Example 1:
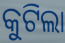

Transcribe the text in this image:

କୁଟିଲା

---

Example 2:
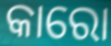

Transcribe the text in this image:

କାରୋ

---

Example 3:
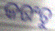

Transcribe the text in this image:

କରଂତୁ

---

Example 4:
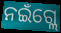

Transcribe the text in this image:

ନଇଁଗ୍ଲେ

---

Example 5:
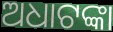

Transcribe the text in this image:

ଅଧାଟଙ୍କା